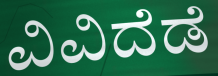
ವಿವಿದೆಡೆ